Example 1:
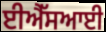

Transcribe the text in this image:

ਈਐੱਸਆਈ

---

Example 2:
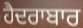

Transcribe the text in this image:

ਹੈਦਰਾਬਾਰ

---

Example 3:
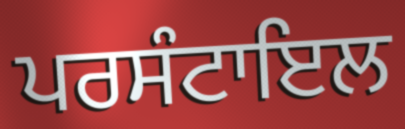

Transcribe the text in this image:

ਪਰਸੰਟਾਇਲ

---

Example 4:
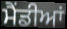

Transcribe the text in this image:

ਮੈਂਡੀਆਂ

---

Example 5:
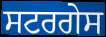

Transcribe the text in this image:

ਸਟਰਗੇਸ